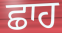
ਛਾਹ